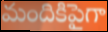
మందికిపైగా